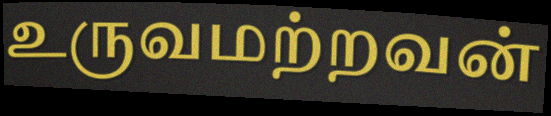
உருவமற்றவன்